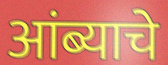
आंब्याचे